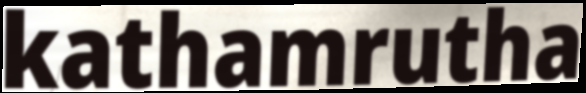
kathamrutha